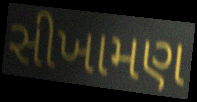
સીખામણ